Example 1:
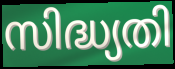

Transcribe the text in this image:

സിദ്ധ്യതി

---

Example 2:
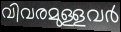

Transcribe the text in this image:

വിവരമുള്ളവർ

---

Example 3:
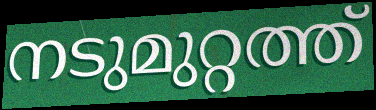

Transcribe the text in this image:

നടുമുറ്റത്ത്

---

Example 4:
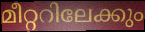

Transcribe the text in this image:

മീറ്ററിലേക്കും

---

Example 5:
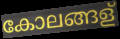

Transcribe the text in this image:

കോലങ്ങള്